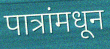
पात्रांमधून